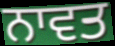
ਨਾਵਤ